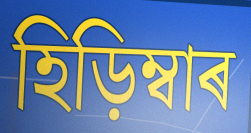
হিড়িম্বাৰ